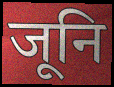
जूनि